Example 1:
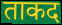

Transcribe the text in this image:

ताकद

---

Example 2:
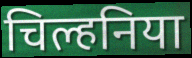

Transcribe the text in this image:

चिल्हनिया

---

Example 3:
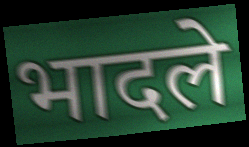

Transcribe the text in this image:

भादले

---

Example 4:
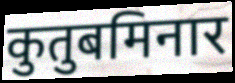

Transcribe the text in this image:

कुतुबमिनार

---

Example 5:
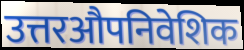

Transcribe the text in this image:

उत्तरऔपनिवेशिक